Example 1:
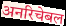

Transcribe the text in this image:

अनरिचेबल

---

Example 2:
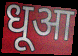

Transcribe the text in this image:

धूआ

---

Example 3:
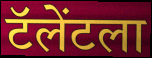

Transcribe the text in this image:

टॅलेंटला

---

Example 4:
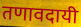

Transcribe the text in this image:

तणावदायी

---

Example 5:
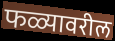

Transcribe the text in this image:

फळ्यावरील